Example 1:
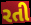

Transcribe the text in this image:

રતી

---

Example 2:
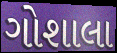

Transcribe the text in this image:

ગોશાલા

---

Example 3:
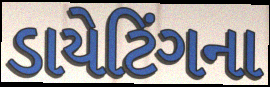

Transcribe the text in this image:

ડાયેટિંગના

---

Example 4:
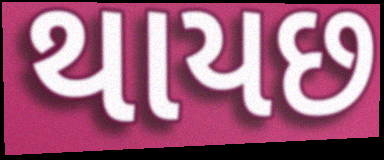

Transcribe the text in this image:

થાયછ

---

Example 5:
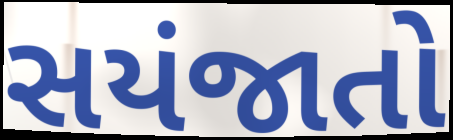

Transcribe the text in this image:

સયંજાતો